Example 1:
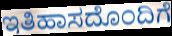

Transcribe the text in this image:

ಇತಿಹಾಸದೊಂದಿಗೆ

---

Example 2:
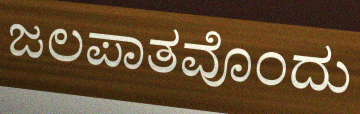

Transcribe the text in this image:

ಜಲಪಾತವೊಂದು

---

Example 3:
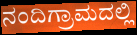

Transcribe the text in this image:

ನಂದಿಗ್ರಾಮದಲ್ಲಿ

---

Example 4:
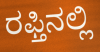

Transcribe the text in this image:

ರಫ್ತಿನಲ್ಲಿ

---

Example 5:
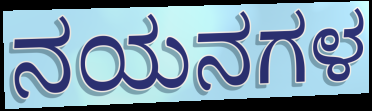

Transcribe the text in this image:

ನಯನಗಳ